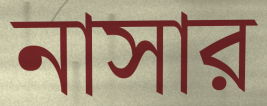
নাসার